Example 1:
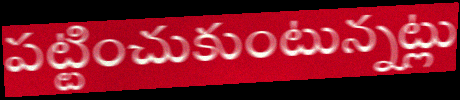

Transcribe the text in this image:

పట్టించుకుంటున్నట్లు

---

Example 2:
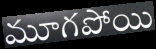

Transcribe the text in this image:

మూగపోయి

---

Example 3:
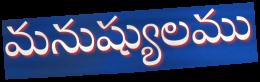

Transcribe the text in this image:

మనుష్యులము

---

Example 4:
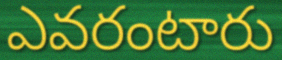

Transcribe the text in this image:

ఎవరంటారు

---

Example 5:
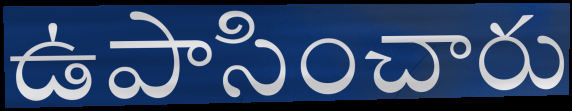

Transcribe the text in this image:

ఉపాసించారు